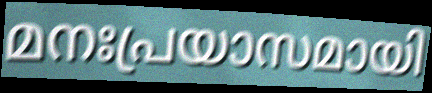
മനഃപ്രയാസമായി